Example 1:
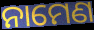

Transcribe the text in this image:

ନାମେଣ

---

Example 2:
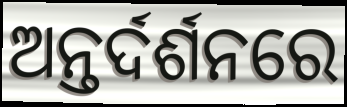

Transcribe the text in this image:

ଅନ୍ତର୍ଦର୍ଶନରେ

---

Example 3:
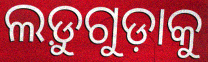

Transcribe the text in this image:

ଲଡ଼ୁଗୁଡ଼ାକୁ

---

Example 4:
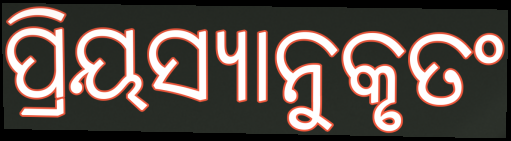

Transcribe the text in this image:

ପ୍ରିୟସ୍ୟାନୁକୃତଂ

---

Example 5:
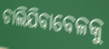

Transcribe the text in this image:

ଚାଲିଯିବାବେଳକୁ